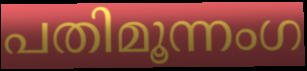
പതിമൂന്നംഗ